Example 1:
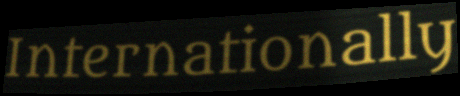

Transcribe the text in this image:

Internationally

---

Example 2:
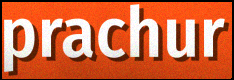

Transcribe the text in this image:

prachur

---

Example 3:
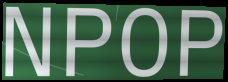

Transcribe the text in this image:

NPOP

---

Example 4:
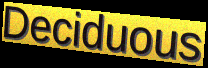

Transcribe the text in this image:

Deciduous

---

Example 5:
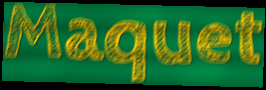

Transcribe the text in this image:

Maquet